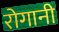
रोगानी